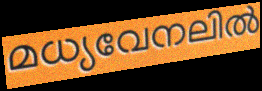
മധ്യവേനലിൽ